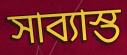
সাব্যাস্ত